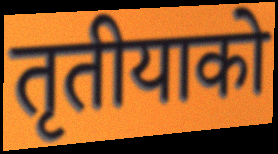
तृतीयाको